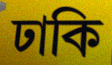
ঢাকি